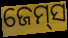
ଜେମ୍‌ସ